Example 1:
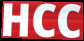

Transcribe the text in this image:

HCC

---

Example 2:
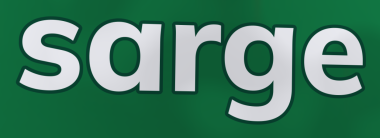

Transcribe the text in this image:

sarge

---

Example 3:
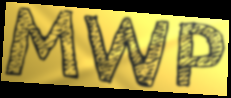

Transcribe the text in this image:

MWP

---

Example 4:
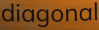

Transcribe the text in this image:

diagonal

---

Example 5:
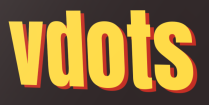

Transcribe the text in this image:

vdots